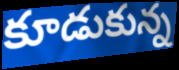
కూడుకున్న